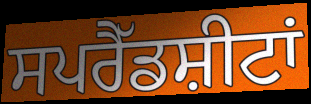
ਸਪਰੈੱਡਸ਼ੀਟਾਂ